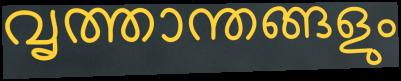
വൃത്താന്തങ്ങളും